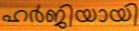
ഹർജിയായി